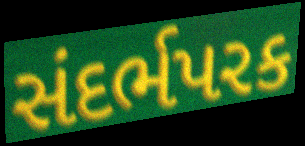
સંદર્ભપરક